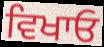
ਵਿਖਾਓ